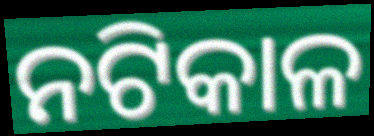
ନଟିକାଳ